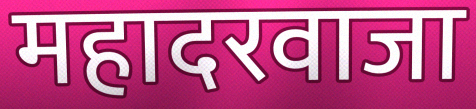
महादरवाजा